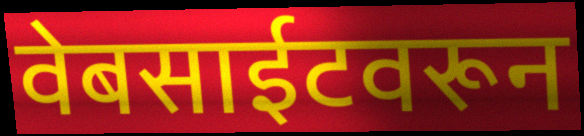
वेबसाईटवरून